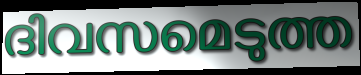
ദിവസമെടുത്ത